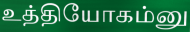
உத்தியோகம்னு